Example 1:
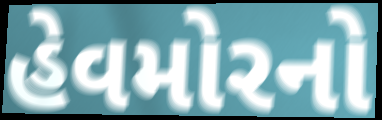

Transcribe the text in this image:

હેવમોરનો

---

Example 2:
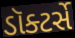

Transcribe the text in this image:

ડૉક્ટર્સે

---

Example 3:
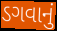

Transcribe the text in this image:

ડગવાનું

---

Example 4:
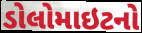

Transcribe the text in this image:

ડોલોમાઇટનો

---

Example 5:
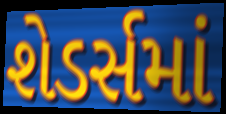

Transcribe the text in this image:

શેડર્સમાં